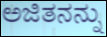
ಅಜಿತನನ್ನು